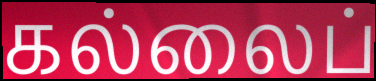
கல்லைப்